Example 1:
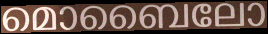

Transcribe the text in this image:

മൊബൈലോ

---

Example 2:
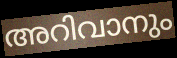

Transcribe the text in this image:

അറിവാനും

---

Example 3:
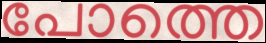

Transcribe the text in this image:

പോത്തെ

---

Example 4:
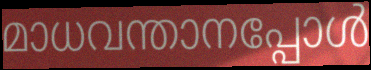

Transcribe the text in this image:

മാധവന്താനപ്പോൾ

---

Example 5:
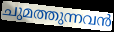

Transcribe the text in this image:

ചുമത്തുന്നവൻ